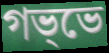
গভ্ভে